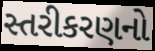
સ્તરીકરણનો